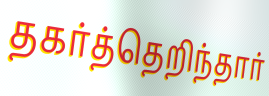
தகர்த்தெறிந்தார்